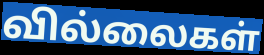
வில்லைகள்